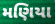
મણિયા